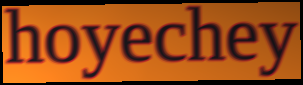
hoyechey